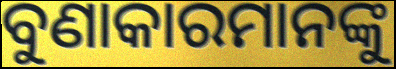
ବୁଣାକାରମାନଙ୍କୁ